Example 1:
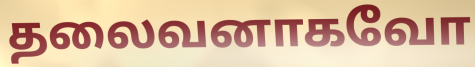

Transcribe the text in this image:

தலைவனாகவோ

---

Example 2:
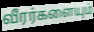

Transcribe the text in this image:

வீரர்களையும்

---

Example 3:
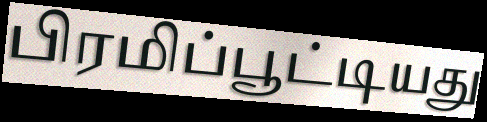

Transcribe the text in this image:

பிரமிப்பூட்டியது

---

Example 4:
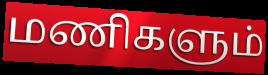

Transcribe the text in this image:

மணிகளும்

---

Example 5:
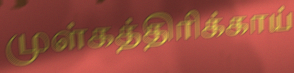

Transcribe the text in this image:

முள்கத்திரிக்காய்